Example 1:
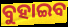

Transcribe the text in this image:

ବୁହାଇବ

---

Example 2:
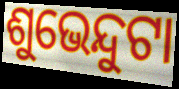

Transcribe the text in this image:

ଶୁଭେନ୍ଦୁଟା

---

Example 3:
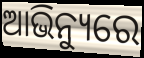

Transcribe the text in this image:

ଆଭିନ୍ୟୁରେ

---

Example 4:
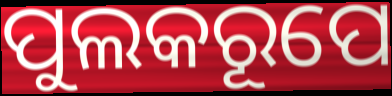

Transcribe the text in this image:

ପୁଲକରୂପେ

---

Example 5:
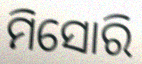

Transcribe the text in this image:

ମିସୋରି